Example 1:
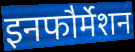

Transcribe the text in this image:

इनफौर्मेशन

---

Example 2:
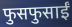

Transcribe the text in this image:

फुसफुसाईं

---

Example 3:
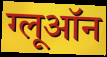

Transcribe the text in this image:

ग्लूऑन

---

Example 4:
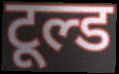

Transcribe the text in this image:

टूल्ड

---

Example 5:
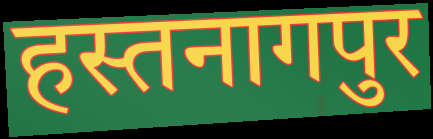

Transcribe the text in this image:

हस्तनागपुर